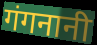
गंगनानी